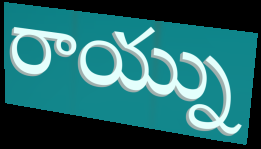
రాయ్ను